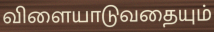
விளையாடுவதையும்